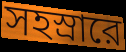
সহস্রারে